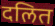
दलित